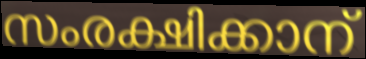
സംരക്ഷിക്കാന്